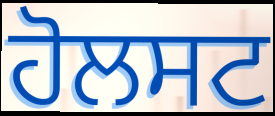
ਹੋਲਸਟ